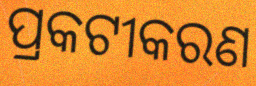
ପ୍ରକଟୀକରଣ